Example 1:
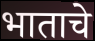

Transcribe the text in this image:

भाताचे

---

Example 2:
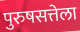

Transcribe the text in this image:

पुरुषसत्तेला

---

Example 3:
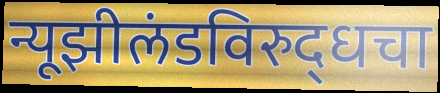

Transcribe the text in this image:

न्यूझीलंडविरुद्धचा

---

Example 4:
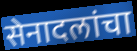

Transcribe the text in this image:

सेनादलांचा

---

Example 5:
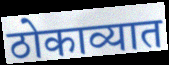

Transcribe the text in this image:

ठोकाव्यात